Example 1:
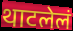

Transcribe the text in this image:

थाटलेलं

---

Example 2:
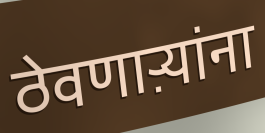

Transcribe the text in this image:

ठेवणाऱ्‍यांना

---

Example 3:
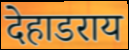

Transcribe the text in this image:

देहाडराय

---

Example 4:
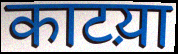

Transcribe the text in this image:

काटय़ा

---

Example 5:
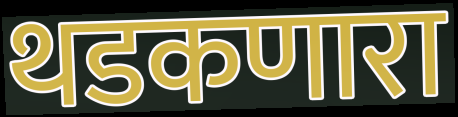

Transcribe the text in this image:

थडकणारा